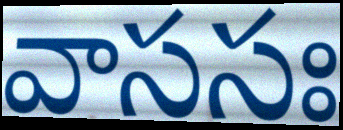
వాససః